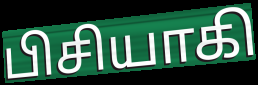
பிசியாகி